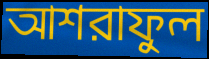
আশরাফুল